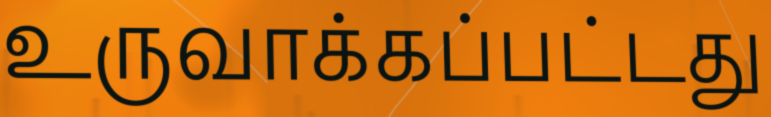
உருவாக்கப்பட்டது